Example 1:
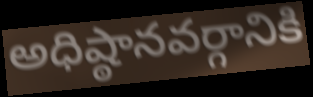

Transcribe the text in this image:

అధిష్ఠానవర్గానికి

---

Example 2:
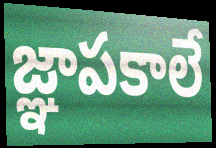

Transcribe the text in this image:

జ్ఞాపకాలే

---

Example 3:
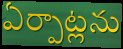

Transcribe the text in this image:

ఏర్పాట్లను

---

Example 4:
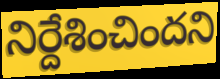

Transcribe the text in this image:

నిర్దేశించిందని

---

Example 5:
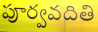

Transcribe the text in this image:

పూర్వవదితి